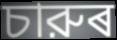
চাৰুৰ